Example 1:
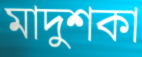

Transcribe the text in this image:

মাদুশকা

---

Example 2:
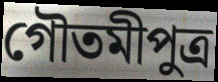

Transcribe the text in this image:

গৌতমীপুত্র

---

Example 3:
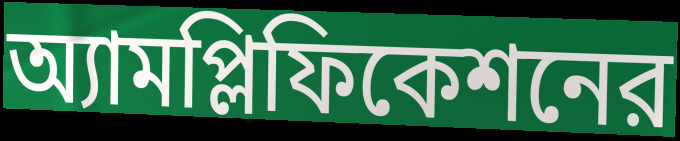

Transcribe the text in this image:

অ্যামপ্লিফিকেশনের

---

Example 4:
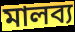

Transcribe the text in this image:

মালব্য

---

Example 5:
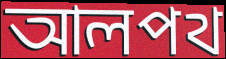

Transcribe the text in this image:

আলপথ